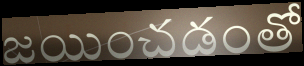
జయించడంతో